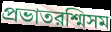
প্রভাতরশ্মিসম